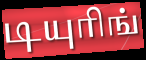
டியுரிங்